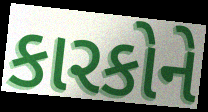
કારકોને